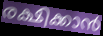
രക്ഷിക്കാൻ